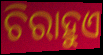
ଚିରାହୁଏ